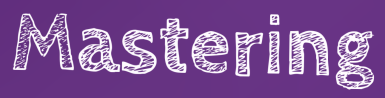
Mastering